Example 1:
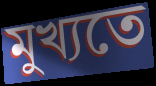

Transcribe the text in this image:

মুখ্যতে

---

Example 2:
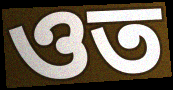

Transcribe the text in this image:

ওত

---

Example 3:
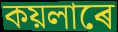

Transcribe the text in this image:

কয়লাৰে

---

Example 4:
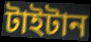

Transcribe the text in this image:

টাইটান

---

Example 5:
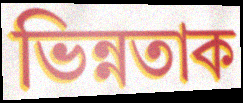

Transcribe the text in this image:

ভিন্নতাক